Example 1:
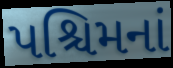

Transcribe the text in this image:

પશ્ચિમનાં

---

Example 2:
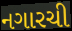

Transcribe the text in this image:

નગારચી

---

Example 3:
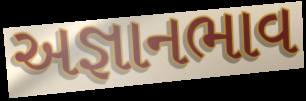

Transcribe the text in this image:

અજ્ઞાનભાવ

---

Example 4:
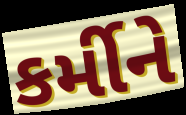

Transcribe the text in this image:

કર્મીને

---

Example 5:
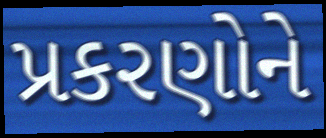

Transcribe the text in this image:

પ્રકરણોને